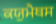
ਕਯੁਮੈਥਸ